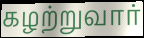
கழற்றுவார்